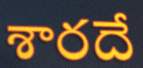
శారదే